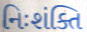
નિઃશંક્તિ